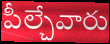
పీల్చేవారు